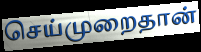
செய்முறைதான்